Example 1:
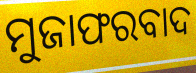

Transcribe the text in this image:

ମୁଜାଫରବାଦ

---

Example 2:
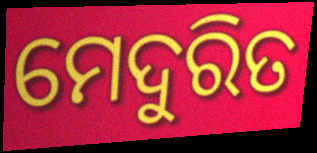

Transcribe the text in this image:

ମେଦୁରିତ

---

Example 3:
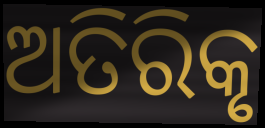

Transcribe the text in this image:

ଅତିରିକୃ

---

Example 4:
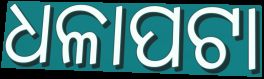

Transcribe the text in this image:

ଧଳାପଟା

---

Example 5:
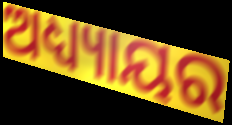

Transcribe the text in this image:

ଅଧ୍ୟ୍ୟାୟର